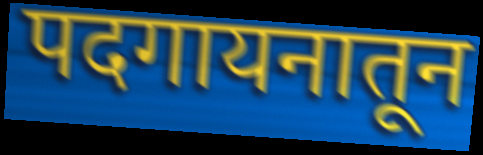
पदगायनातून